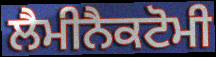
ਲੈਮੀਨੈਕਟੋਮੀ